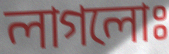
লাগলোঃ